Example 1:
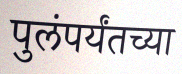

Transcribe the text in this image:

पुलंपर्यंतच्या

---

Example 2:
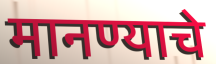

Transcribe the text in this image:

मानण्याचे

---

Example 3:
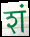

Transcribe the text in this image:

शं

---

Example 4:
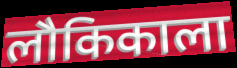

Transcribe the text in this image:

लौकिकाला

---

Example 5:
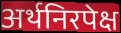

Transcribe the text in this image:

अर्थनिरपेक्ष